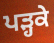
ਪੜ੍ਹਕੇ